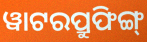
ୱାଟରପ୍ରୁଫିଙ୍ଗ୍